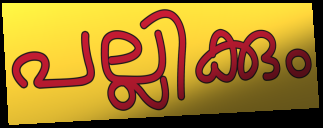
പല്ലിക്കും